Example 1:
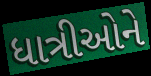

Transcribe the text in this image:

ધાત્રીઓને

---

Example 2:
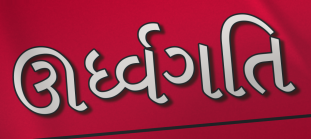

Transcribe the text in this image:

ઊર્ધ્વગતિ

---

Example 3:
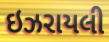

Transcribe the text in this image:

ઇઝરાયલી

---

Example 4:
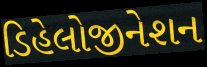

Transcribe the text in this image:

ડિહેલોજીનેશન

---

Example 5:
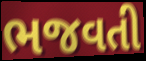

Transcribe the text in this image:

ભજવતી